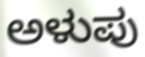
ಅಳುಪು